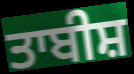
ਤਾਬੀਸ਼